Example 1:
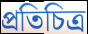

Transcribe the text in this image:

প্রতিচিত্র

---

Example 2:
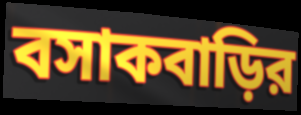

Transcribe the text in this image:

বসাকবাড়ির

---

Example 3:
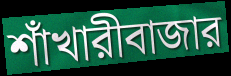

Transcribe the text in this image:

শাঁখারীবাজার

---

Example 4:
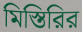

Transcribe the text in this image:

মিস্তিরির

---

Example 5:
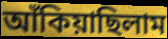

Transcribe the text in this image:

আঁকিয়াছিলাম